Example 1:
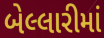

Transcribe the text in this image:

બેલ્લારીમાં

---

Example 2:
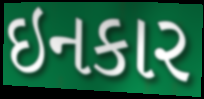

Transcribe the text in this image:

ઇનકાર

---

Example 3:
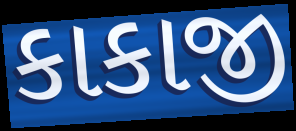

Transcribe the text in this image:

કાકાજી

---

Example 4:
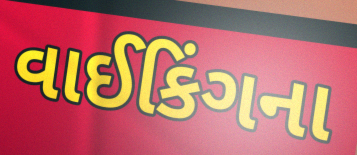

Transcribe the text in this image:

વાઈકિંગના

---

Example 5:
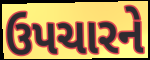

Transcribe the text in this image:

ઉપચારને